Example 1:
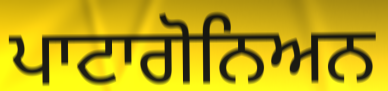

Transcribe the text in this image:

ਪਾਟਾਗੋਨਿਅਨ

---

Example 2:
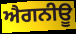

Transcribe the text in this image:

ਐਗਨੀਊ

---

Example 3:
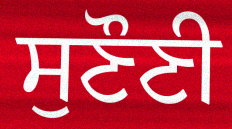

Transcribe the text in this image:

ਸੁਣੌਣੀ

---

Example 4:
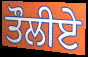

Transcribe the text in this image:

ਤੌਲੀਏ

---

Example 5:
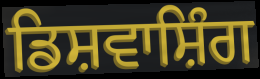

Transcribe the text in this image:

ਡਿਸ਼ਵਾਸ਼ਿੰਗ